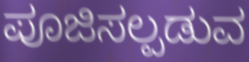
ಪೂಜಿಸಲ್ಪಡುವ